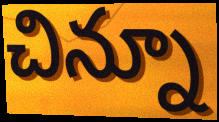
చిన్నూ